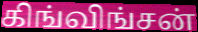
கிங்விங்சன்